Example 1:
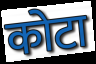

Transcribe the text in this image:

कोटा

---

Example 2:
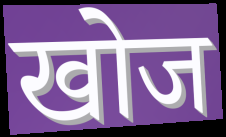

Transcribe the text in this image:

खोज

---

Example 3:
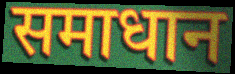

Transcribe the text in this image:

समाधान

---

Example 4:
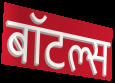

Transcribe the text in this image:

बॉटल्स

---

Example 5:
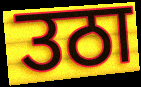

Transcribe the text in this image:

उठा